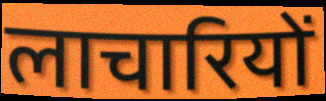
लाचारियों